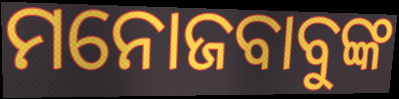
ମନୋଜବାବୁଙ୍କ